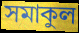
সমাকুল